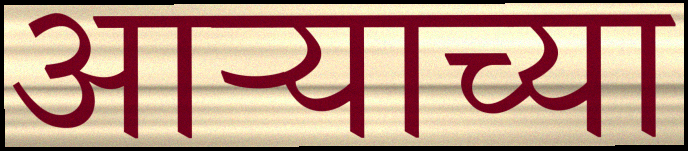
आऱ्याच्या